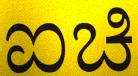
ಐಚಿ